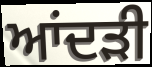
ਆਂਦੜੀ